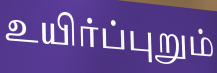
உயிர்ப்புறும்